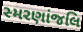
સ્મરણાંજલિ